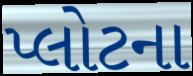
પ્લોટના